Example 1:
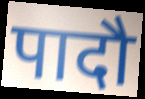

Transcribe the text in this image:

पादौ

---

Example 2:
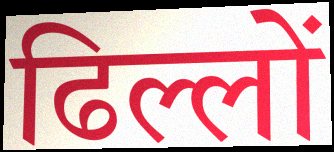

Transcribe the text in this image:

ढिल्लों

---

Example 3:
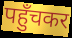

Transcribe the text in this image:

पहुँचकर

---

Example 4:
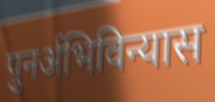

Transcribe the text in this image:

पुनर्अभिविन्यास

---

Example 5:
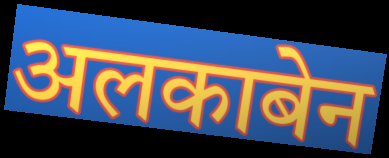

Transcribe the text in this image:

अलकाबेन